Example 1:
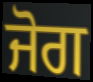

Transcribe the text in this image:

ਜੋਗ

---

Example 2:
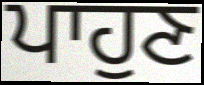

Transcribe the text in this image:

ਪਾਹੁਣ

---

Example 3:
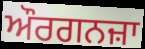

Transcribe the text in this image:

ਔਰਗਨਜ਼ਾ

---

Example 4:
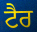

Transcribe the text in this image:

ਟੈਰ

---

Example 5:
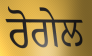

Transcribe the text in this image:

ਰੋਗੇਲ